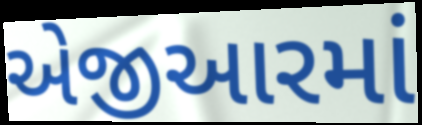
એજીઆરમાં